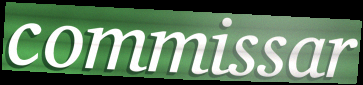
commissar